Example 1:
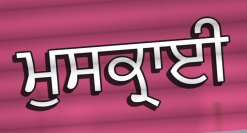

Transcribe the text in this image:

ਮੁਸਕ੍ਰਾਈ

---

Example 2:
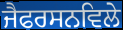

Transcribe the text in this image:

ਜੈਫਰਸਨਵਿਲੇ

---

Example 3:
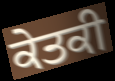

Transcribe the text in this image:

ਕੇਤਕੀ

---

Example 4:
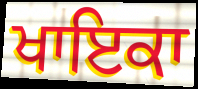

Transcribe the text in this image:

ਖਾਇਕਾ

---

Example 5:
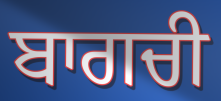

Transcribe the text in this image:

ਬਾਗਚੀ